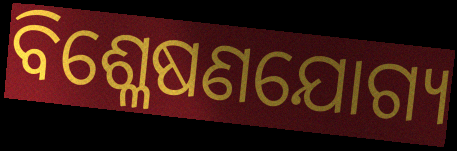
ବିଶ୍ଳେଷଣଯୋଗ୍ୟ